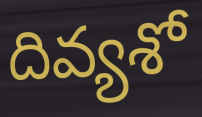
దివ్యశో